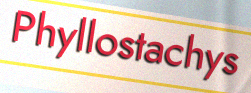
Phyllostachys